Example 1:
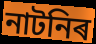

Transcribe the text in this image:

নাটনিৰ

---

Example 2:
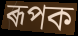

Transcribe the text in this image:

ৰূপক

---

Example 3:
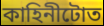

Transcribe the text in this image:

কাহিনীটোত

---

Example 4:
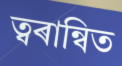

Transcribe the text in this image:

ত্বৰান্বিত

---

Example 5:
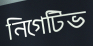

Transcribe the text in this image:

নিগেটিভ